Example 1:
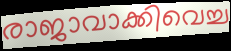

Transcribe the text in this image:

രാജാവാക്കിവെച്ച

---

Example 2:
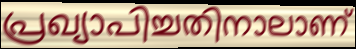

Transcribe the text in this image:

പ്രഖ്യാപിച്ചതിനാലാണ്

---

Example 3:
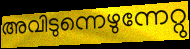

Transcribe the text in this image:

അവിടുന്നെഴുന്നേറ്റു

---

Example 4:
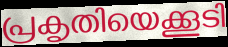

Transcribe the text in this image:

പ്രകൃതിയെക്കൂടി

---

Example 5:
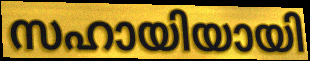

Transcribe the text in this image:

സഹായിയായി